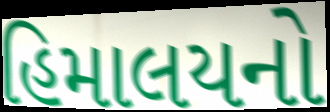
હિમાલયનો